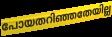
പോയതറിഞ്ഞതേയില്ല